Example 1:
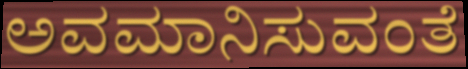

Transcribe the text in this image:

ಅವಮಾನಿಸುವಂತೆ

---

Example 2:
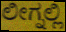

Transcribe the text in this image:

ಲೀಗ್ನಲ್ಲಿ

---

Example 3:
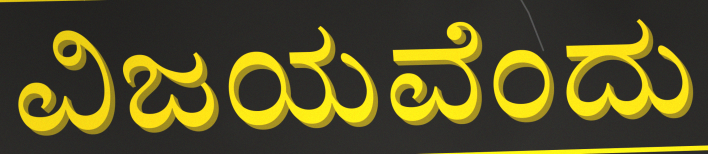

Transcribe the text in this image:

ವಿಜಯವೆಂದು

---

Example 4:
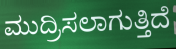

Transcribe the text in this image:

ಮುದ್ರಿಸಲಾಗುತ್ತಿದೆ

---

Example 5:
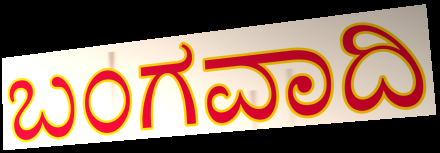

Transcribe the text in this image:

ಬಂಗವಾದಿ